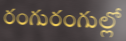
రంగురంగుల్లో